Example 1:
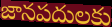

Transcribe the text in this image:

జానపదులకు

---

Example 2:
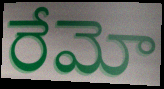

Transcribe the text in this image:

రేమో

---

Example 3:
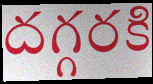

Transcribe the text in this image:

దగ్గరకి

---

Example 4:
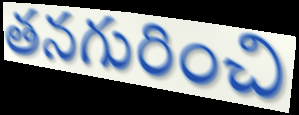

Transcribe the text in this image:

తనగురించి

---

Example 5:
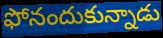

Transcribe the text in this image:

ఫోనందుకున్నాడు